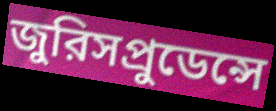
জুরিসপ্রুডেন্সে